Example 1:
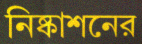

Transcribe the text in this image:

নিষ্কাশনের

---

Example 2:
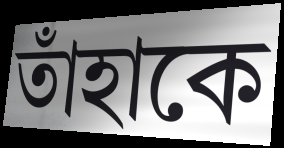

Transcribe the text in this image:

তাঁহাকে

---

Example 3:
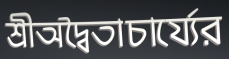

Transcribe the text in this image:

শ্রীঅদ্বৈতাচার্য্যের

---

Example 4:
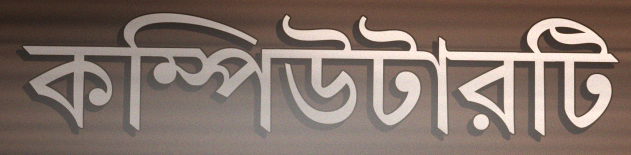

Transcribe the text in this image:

কম্পিউটারটি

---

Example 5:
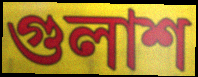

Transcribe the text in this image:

গুলাশ